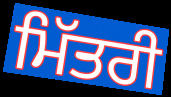
ਮਿੱਤਰੀ